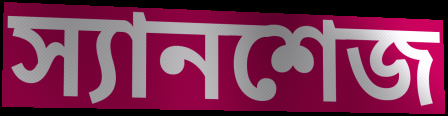
স্যানশেজ